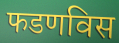
फडणविस